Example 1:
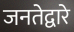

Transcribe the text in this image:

जनतेद्वारे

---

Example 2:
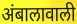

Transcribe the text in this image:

अंबालावाली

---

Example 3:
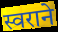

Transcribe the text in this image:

स्वराने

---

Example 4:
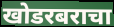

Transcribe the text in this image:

खोडरबराचा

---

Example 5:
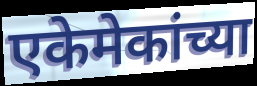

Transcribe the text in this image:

एकेमेकांच्या